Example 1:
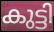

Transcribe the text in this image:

കുട്ടി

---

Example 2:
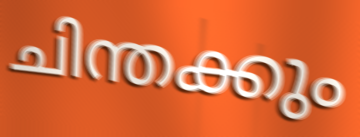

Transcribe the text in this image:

ചിന്തക്കും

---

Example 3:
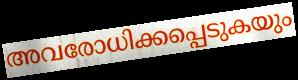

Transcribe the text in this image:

അവരോധിക്കപ്പെടുകയും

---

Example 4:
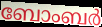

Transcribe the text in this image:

ബോംബർ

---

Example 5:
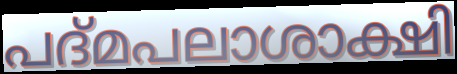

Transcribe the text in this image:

പദ്മപലാശാക്ഷി